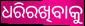
ଧରିରଖିବାକୁ